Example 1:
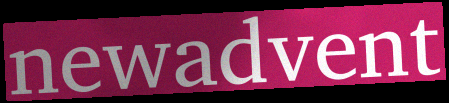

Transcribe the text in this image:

newadvent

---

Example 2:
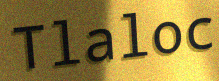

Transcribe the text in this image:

Tlaloc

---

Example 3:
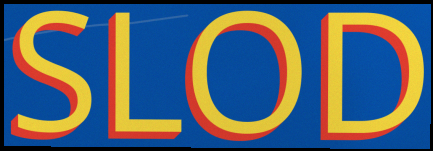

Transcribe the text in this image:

SLOD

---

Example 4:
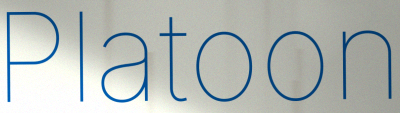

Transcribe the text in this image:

Platoon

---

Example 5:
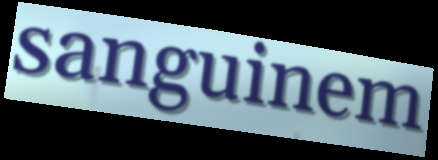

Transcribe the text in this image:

sanguinem